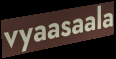
vyaasaala